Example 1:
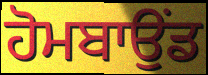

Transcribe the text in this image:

ਹੋਮਬਾਉਂਡ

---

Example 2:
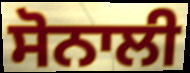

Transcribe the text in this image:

ਸੋਨਾਲੀ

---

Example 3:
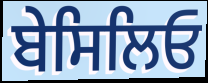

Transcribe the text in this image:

ਬੇਸਿਲਿਓ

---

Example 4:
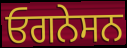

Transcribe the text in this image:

ਓਗਨੇਸਨ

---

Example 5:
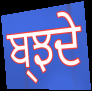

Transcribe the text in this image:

ਬ੍ਝਦੇ